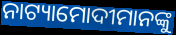
ନାଟ୍ୟାମୋଦୀମାନଙ୍କୁ